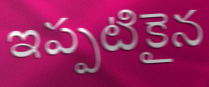
ఇప్పటికైన